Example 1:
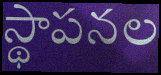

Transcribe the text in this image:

స్థాపనల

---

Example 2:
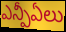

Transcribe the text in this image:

ఎన్పీఏలు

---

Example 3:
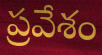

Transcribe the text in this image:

ప్రవేశం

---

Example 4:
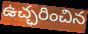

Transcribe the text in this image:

ఉచ్ఛరించిన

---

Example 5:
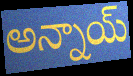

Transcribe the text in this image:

అన్నాయ్